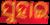
ସୁହାଇ